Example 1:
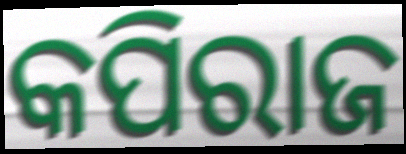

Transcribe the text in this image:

କପିରାଜ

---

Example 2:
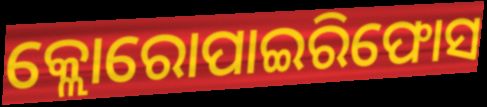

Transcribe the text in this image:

କ୍ଲୋରୋପାଇରିଫୋସ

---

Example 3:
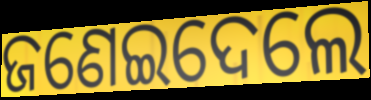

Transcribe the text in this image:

ଜଣେଇଦେଲେ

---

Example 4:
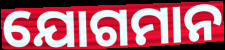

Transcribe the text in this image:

ଯୋଗମାନ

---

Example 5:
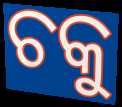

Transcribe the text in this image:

ଚକୁ